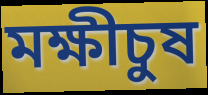
মক্ষীচুষ